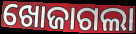
ଖୋଜାଗଲା